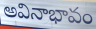
అవినాభావం